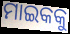
ମାଇକକୁ